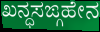
ಖನ್ಧಸಙ್ಗಹೇನ